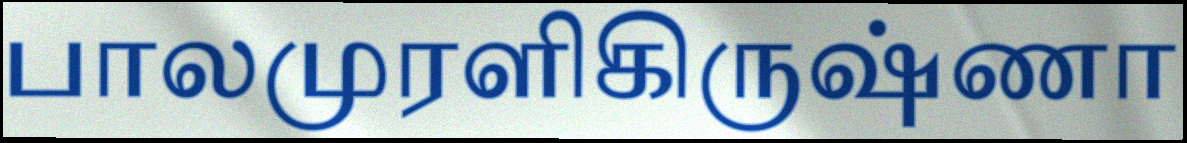
பாலமுரளிகிருஷ்ணா